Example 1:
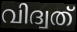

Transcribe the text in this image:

വിദ്വത്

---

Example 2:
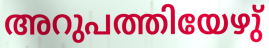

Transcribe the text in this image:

അറുപത്തിയേഴു്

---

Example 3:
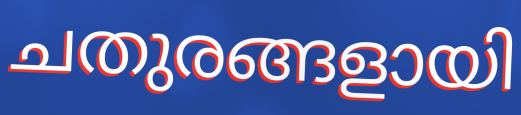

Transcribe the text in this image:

ചതുരങ്ങളായി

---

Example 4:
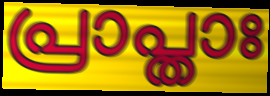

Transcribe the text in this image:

പ്രാപ്താഃ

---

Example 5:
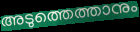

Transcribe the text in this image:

അടുത്തെത്താനും